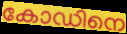
കോഡിനെ